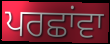
ਪਰਛਾਂਵਾ